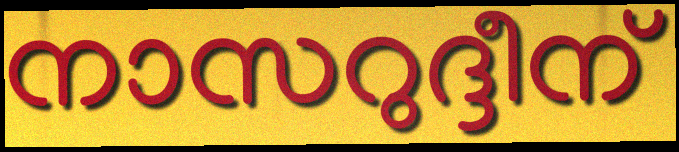
നാസറുദ്ദീന്